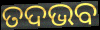
ତଦଭବ